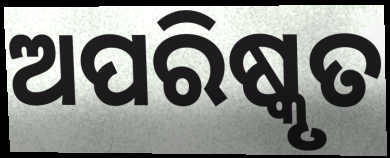
ଅପରିଷ୍କୃତ